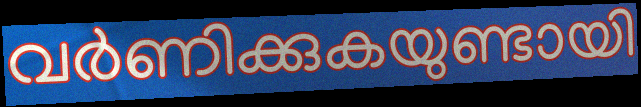
വർണിക്കുകയുണ്ടായി